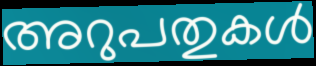
അറുപതുകൾ